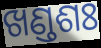
ଖଣ୍ଡଶଃ